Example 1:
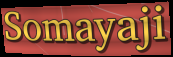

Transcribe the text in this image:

Somayaji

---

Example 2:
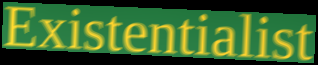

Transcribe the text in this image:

Existentialist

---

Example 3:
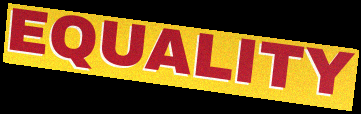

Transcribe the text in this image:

EQUALITY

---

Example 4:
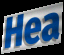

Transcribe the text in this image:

Hea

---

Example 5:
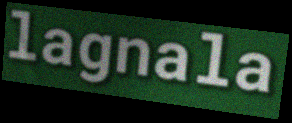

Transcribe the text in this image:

lagnala